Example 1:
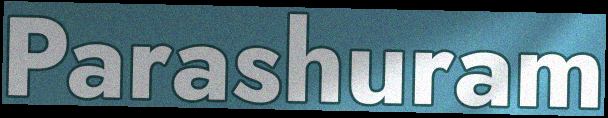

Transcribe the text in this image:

Parashuram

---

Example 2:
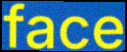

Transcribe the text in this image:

face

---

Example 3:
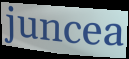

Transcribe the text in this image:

juncea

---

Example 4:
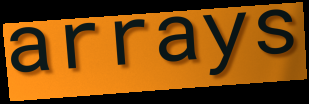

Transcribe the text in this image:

arrays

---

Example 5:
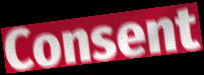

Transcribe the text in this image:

Consent